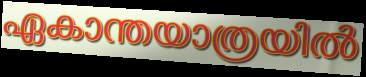
ഏകാന്തയാത്രയിൽ